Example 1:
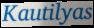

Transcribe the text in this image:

Kautilyas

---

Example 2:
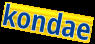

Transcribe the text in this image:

kondae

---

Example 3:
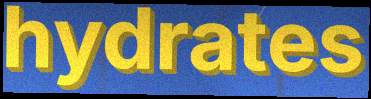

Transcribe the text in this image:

hydrates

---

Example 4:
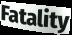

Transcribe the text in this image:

Fatality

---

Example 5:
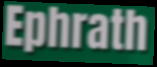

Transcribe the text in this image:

Ephrath